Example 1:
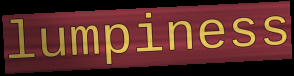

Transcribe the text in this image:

lumpiness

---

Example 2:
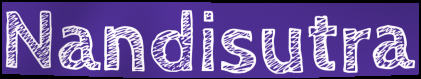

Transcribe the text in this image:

Nandisutra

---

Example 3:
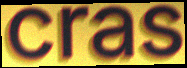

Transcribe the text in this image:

cras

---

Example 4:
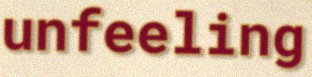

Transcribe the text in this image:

unfeeling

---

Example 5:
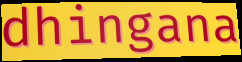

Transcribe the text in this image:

dhingana